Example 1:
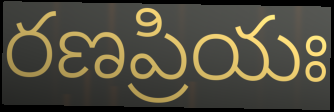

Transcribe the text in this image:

రణప్రియః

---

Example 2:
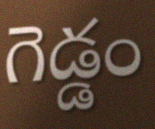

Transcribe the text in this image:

గెడ్డం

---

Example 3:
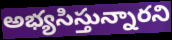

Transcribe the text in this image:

అభ్యసిస్తున్నారని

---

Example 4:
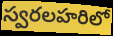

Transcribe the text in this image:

స్వరలహరిలో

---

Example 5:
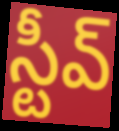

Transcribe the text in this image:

స్టీవ్